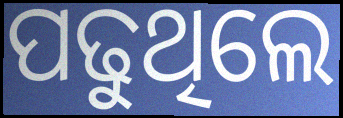
ପଢୁଥିଲେ